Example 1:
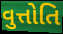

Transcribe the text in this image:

વુત્તોતિ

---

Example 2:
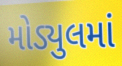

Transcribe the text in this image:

મોડ્યુલમાં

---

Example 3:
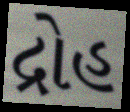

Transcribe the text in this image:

દ્રોહ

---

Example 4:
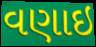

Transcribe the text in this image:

વણાઇ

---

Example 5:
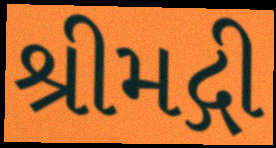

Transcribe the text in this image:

શ્રીમદ્ગી